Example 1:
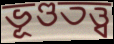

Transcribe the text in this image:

ভূণ্ডতত্ত্ব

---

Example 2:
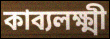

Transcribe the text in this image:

কাব্যলক্ষ্মী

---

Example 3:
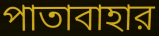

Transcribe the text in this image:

পাতাবাহার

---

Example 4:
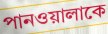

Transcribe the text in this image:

পানওয়ালাকে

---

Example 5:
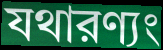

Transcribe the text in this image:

যথারণ্যং